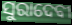
ସୁରାଦେବୀ